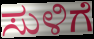
ಸುಳಿಗೆ